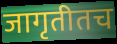
जागृतीतच